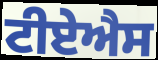
ਟੀਏਐਸ